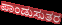
ಪಾಂಡುಸುತರ